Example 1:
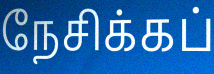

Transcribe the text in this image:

நேசிக்கப்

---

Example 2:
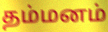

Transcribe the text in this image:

தம்மனம்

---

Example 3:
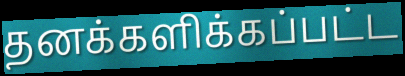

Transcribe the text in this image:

தனக்களிக்கப்பட்ட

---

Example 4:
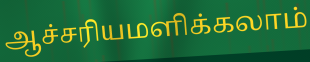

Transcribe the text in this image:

ஆச்சரியமளிக்கலாம்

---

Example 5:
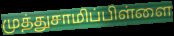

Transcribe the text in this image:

முத்துசாமிப்பிள்ளை